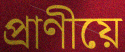
প্ৰাণীয়ে